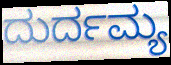
ದುರ್ದಮ್ಯ